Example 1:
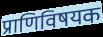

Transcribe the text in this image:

प्राणिविषयक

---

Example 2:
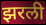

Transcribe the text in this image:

झरली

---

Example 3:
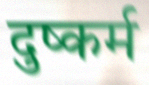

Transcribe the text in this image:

दुष्कर्म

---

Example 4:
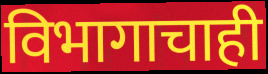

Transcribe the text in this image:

विभागाचाही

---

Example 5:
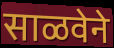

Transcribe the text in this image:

साळवेने